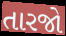
તારજો